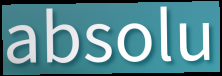
absolu